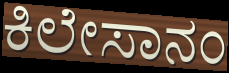
ಕಿಲೇಸಾನಂ